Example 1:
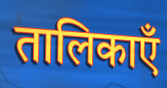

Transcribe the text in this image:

तालिकाएँ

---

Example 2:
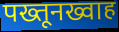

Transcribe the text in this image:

पख्तूनख्वाह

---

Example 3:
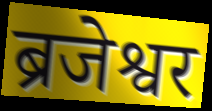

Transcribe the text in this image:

ब्रजेश्वर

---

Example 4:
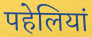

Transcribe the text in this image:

पहेलियां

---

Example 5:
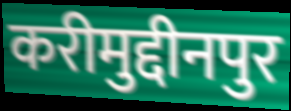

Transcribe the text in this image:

करीमुद्दीनपुर